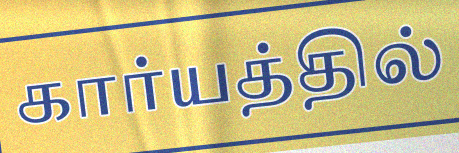
கார்யத்தில்